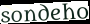
sondeho